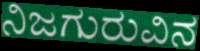
ನಿಜಗುರುವಿನ